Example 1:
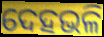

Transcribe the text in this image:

ଦେହଭଳି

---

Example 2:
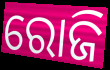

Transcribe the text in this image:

ରୋଜି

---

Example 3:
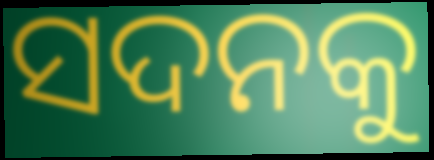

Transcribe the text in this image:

ସଦନକୁ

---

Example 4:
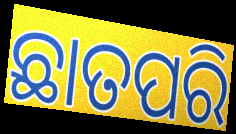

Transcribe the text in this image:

ଛାତପରି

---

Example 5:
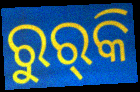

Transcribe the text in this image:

ରୁର୍‍କି